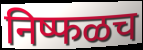
निष्फळच